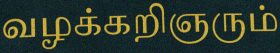
வழக்கறிஞரும்